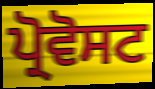
ਪ੍ਰੋਵੋਸਟ